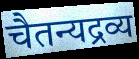
चैतन्यद्रव्य